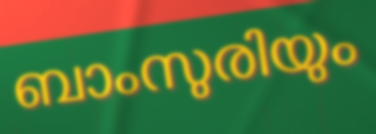
ബാംസുരിയും